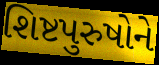
શિષ્ટપુરુષોને